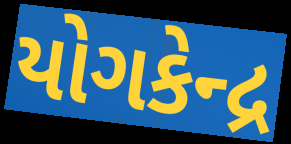
યોગકેન્દ્ર